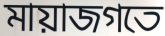
মায়াজগতে